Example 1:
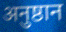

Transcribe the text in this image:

अनुष्ठान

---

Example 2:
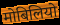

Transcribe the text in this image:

मोबिलियो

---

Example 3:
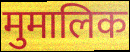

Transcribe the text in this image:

मुमालिक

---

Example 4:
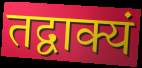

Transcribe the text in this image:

तद्वाक्यं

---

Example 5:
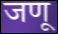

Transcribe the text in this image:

जणू